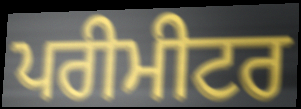
ਪਰੀਮੀਟਰ